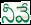
నీవే